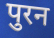
पुरन